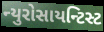
ન્યુરોસાયન્ટિસ્ટ